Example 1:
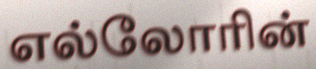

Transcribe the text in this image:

எல்லோரின்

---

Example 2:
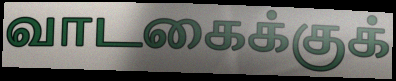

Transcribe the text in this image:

வாடகைக்குக்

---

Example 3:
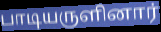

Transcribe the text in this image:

பாடியருளினார்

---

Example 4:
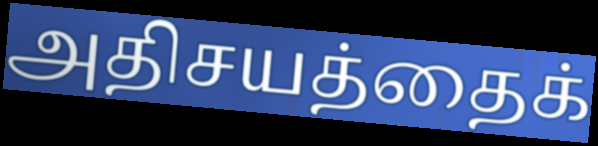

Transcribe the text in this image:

அதிசயத்தைக்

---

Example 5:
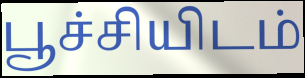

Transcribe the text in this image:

பூச்சியிடம்